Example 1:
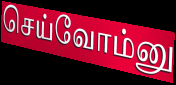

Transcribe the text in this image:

செய்வோம்னு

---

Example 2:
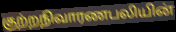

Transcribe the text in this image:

குற்றநிவாரணபலியின்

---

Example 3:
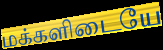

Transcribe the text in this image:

மக்களிடையே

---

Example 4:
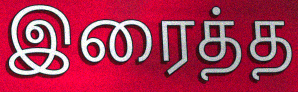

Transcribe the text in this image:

இரைத்த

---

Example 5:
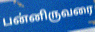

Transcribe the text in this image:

பன்னிருவரை